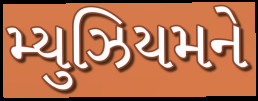
મ્યુઝિયમને